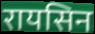
रायसिन